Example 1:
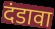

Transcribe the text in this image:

दंडावा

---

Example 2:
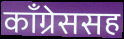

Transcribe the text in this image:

काँग्रेससह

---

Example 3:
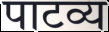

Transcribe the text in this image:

पाटव्य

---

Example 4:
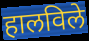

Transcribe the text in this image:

हालविले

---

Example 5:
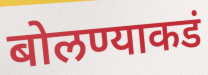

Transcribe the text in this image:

बोलण्याकडं